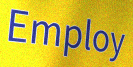
Employ